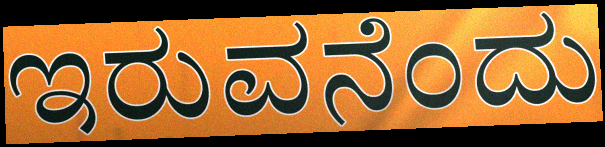
ಇರುವನೆಂದು